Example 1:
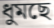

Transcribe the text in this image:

ধুমছে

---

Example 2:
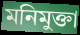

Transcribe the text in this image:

মনিমুক্তা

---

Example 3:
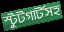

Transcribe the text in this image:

স্টুটগার্টসহ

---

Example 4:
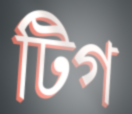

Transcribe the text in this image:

টিগ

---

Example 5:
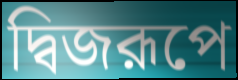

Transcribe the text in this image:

দ্বিজরূপে